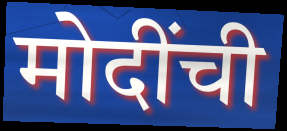
मोदींची